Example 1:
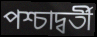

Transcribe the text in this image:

পশ্চাদ্বর্তী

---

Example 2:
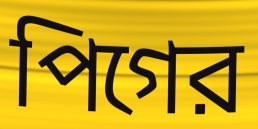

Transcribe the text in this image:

পিগের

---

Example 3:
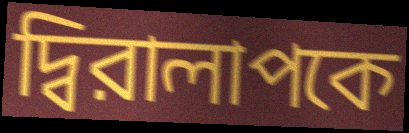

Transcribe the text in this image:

দ্বিরালাপকে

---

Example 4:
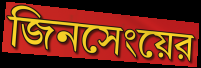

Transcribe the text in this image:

জিনসেংয়ের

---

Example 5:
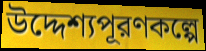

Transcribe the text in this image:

উদ্দেশ্যপূরণকল্পে